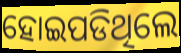
ହୋଇପଡିଥିଲେ